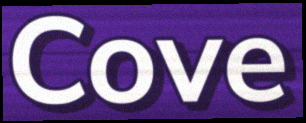
Cove